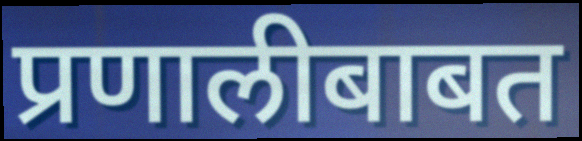
प्रणालीबाबत